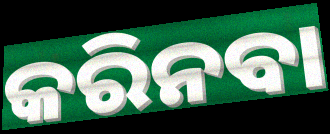
କରିନବା